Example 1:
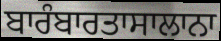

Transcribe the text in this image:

ਬਾਰੰਬਾਰਤਾਸਾਲਾਨਾ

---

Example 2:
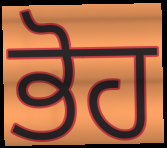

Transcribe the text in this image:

ਭੋਹ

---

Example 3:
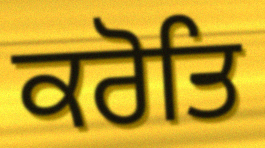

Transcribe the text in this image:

ਕਰੋਤਿ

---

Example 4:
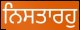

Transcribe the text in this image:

ਨਿਸਤਾਰਹੁ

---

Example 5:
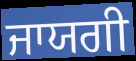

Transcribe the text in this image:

ਜਾਯਗੀ